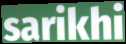
sarikhi